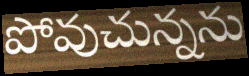
పోవుచున్నను